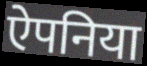
ऐपनिया